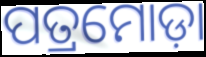
ପତ୍ରମୋଡ଼ା